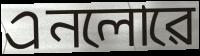
এনলোৱে